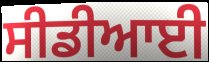
ਸੀਡੀਆਈ